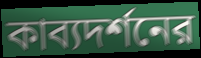
কাব্যদর্শনের